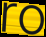
ro